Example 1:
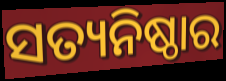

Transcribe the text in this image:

ସତ୍ୟନିଷ୍ଠାର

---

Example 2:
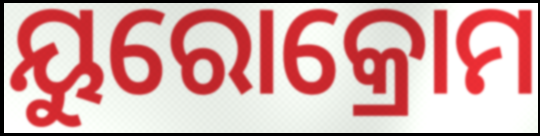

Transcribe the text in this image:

ୟୁରୋକ୍ରୋମ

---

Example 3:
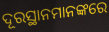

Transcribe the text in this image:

ଦୂରସ୍ଥାନମାନଙ୍କରେ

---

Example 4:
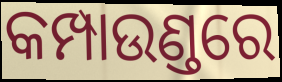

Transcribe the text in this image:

କମ୍ପାଉଣ୍ଡରେ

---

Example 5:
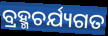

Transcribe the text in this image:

ବ୍ରହ୍ମଚର୍ଯ୍ୟଗତ